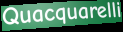
Quacquarelli